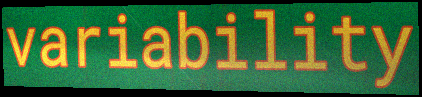
variability